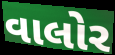
વાલોર